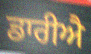
ਡਾਰੀਐ